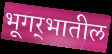
भूगर्भातील